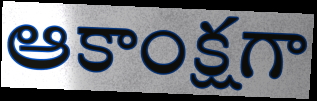
ఆకాంక్షగా